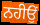
ਨਹੀਉਂ